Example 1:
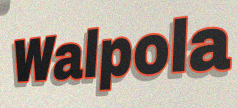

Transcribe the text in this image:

Walpola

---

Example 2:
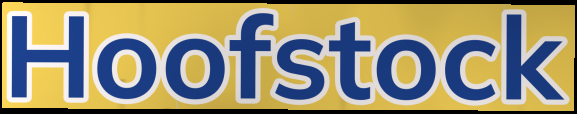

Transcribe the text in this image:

Hoofstock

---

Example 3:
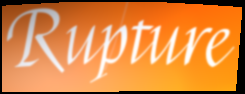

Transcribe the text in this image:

Rupture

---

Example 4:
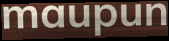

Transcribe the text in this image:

maupun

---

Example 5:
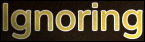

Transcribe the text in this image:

Ignoring